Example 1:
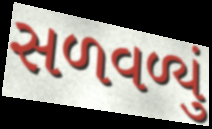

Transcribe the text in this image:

સળવળ્યું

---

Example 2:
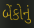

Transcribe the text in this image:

બેંકોનું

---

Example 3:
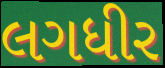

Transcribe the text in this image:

લગધીર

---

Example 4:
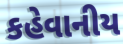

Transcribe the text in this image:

કહેવાનીય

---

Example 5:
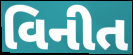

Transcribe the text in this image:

વિનીત